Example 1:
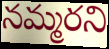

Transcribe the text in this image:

నమ్మరని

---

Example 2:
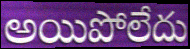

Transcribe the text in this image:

అయిపోలేదు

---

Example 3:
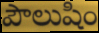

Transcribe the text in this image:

పౌలుషిం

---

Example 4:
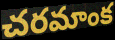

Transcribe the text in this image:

చరమాంక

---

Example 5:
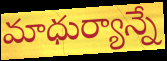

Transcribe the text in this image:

మాధుర్యాన్నే